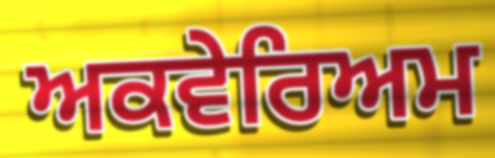
ਅਕਵੇਰਿਅਮ